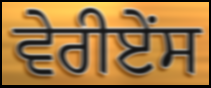
ਵੇਰੀਏਂਸ